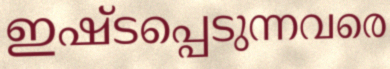
ഇഷ്ടപ്പെടുന്നവരെ